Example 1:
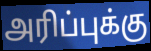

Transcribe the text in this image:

அரிப்புக்கு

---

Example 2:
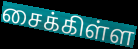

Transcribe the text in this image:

சைக்கிள்ள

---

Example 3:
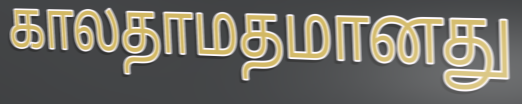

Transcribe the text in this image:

காலதாமதமானது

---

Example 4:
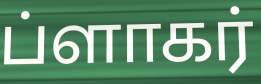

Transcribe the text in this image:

ப்ளாகர்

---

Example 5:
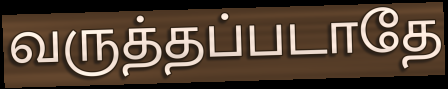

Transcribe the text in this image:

வருத்தப்படாதே